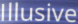
Illusive